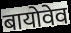
बायोवेव